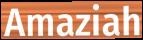
Amaziah